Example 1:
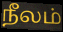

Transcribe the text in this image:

நீலம்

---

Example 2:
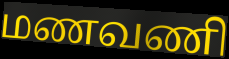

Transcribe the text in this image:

மணவணி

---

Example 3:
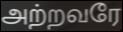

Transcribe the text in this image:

அற்றவரே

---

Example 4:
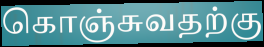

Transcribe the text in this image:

கொஞ்சுவதற்கு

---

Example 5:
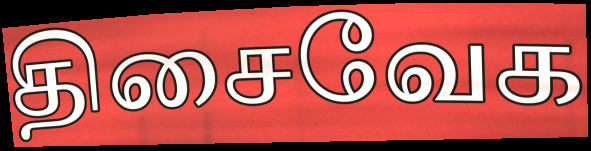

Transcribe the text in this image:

திசைவேக